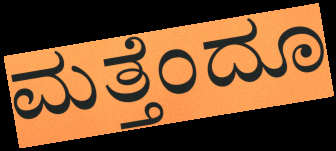
ಮತ್ತೆಂದೂ